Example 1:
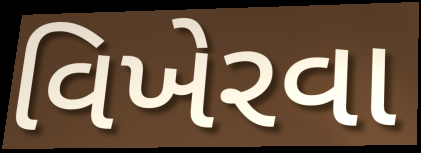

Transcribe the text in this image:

વિખેરવા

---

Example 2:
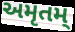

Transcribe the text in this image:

અમૃતમ્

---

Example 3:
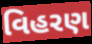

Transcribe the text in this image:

વિહરણ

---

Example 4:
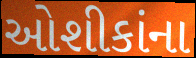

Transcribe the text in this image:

ઓશીકાંના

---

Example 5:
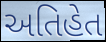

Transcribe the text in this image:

અતિહેત